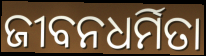
ଜୀବନଧର୍ମିତା